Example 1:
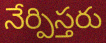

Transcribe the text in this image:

నేర్పిస్తరు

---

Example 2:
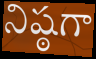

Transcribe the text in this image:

నిష్ఠగా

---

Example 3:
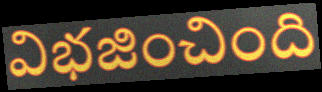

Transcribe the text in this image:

విభజించింది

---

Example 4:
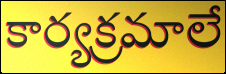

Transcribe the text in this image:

కార్యక్రమాలే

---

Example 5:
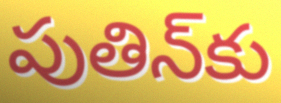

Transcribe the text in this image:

పుతిన్‌కు